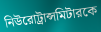
নিউরোট্রান্সমিটারকে